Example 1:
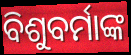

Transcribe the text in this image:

ବିଶୁବର୍ମାଙ୍କ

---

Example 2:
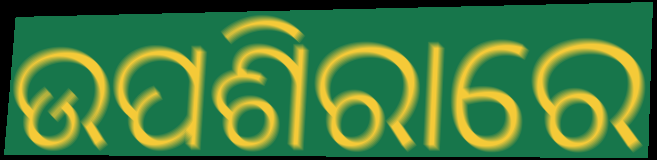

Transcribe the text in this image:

ଉପଶିରାରେ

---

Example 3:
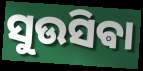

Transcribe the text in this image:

ସୁଉସିଵା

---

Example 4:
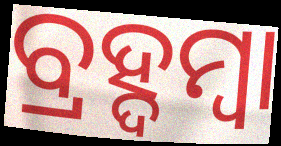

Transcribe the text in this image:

ବ୍ରହ୍ଦମ୍ବା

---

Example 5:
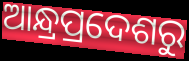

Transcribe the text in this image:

ଆନ୍ଧ୍ରପ୍ରଦେଶରୁ